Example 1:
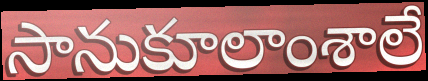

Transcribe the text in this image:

సానుకూలాంశాలే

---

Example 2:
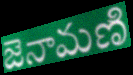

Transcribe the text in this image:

జెనామణి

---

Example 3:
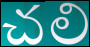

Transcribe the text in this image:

చలి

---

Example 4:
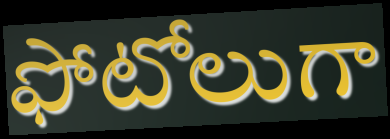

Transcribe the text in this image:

ఫోటోలుగా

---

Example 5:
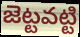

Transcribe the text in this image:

జెట్టవట్టి